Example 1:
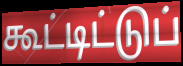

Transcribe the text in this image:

கூட்டிட்டுப்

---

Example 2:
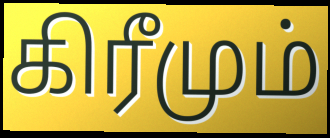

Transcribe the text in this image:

கிரீமும்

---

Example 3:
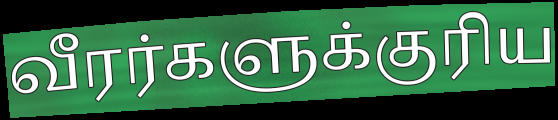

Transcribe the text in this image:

வீரர்களுக்குரிய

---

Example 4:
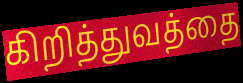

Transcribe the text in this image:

கிறித்துவத்தை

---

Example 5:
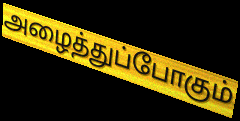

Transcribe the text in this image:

அழைத்துப்போகும்